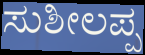
ಸುಶೀಲಪ್ಪ